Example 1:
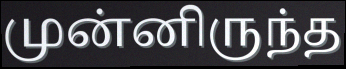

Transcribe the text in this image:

முன்னிருந்த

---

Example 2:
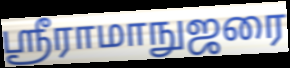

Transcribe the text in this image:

ஸ்ரீராமாநுஜரை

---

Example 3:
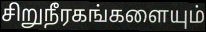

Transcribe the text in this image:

சிறுநீரகங்களையும்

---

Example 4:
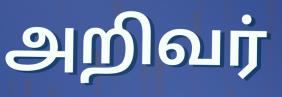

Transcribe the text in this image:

அறிவர்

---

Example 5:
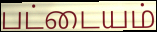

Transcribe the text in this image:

பட்டையம்